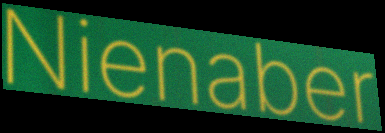
Nienaber